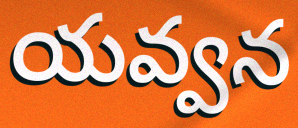
యవ్వన